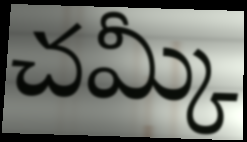
చమ్కీ